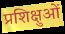
प्रशिक्षुओं